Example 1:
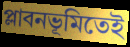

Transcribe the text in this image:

প্লাবনভূমিতেই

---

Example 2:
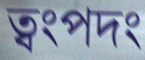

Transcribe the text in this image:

ত্বংপদং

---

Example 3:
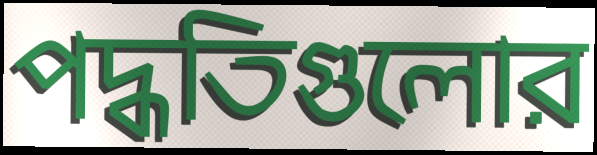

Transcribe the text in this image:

পদ্ধতিগুলোর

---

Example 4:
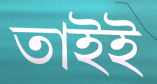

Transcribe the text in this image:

তাইই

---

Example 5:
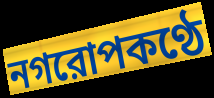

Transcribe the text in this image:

নগরোপকণ্ঠে